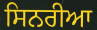
ਸਿਨਰੀਆ